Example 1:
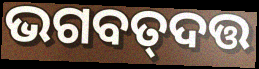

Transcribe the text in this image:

ଭଗବତ୍‌ଦତ୍ତ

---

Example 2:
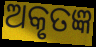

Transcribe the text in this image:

ଅକୃତଜ୍ଞ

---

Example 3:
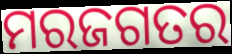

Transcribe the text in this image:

ମରଜଗତର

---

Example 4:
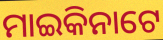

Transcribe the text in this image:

ମାଇକିନାଟେ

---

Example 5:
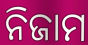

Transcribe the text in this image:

ନିଜାମ